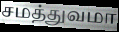
சமத்துவமா